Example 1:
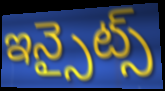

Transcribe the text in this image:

ఇన్సైట్స్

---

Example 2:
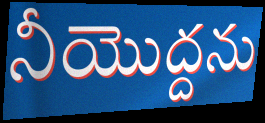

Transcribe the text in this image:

నీయొద్దను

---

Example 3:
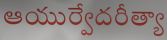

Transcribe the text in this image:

ఆయుర్వేదరీత్యా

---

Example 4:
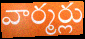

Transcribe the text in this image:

వార్మర్లు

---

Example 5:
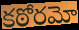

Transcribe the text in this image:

కఠోరమో